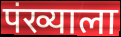
पंख्याला